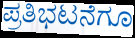
ಪ್ರತಿಭಟನೆಗೂ